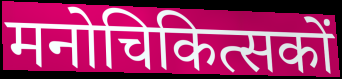
मनोचिकित्सकों